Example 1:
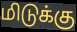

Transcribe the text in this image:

மிடுக்கு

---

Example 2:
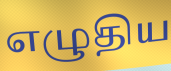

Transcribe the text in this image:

எழுதிய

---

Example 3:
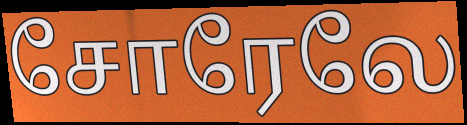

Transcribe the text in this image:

சோரேலே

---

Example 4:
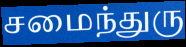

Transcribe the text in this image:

சமைந்துரு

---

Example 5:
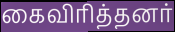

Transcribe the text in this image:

கைவிரித்தனர்